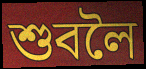
শুবলৈ